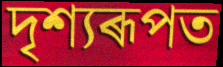
দৃশ্যৰূপত